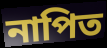
নাপিত